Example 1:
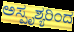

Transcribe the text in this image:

ಅಸ್ಪೃಶ್ಯರಿಂದ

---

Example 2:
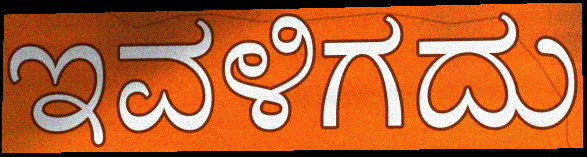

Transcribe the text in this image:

ಇವಳಿಗದು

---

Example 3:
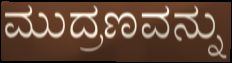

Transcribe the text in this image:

ಮುದ್ರಣವನ್ನು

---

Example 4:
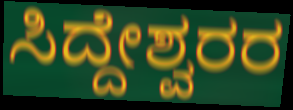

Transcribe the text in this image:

ಸಿದ್ದೇಶ್ವರರ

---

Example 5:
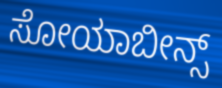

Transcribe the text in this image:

ಸೋಯಾಬೀನ್ಸ್